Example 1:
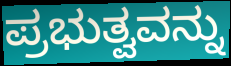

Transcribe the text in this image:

ಪ್ರಭುತ್ವವನ್ನು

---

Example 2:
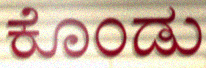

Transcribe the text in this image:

ಕೊಂಡು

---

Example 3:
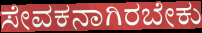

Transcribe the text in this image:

ಸೇವಕನಾಗಿರಬೇಕು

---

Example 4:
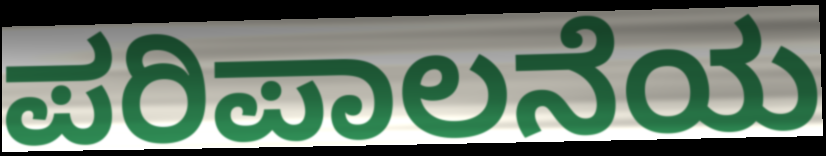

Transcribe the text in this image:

ಪರಿಪಾಲನೆಯ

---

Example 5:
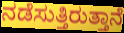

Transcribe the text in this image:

ನಡೆಸುತ್ತಿರುತ್ತಾನೆ